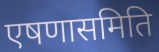
एषणासमिति